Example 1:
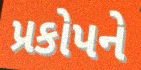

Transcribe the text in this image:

પ્રકોપને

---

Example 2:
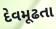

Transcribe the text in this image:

દેવમૂઢતા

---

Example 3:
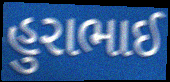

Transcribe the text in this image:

હુરાભાઈ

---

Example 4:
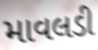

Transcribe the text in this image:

માવલડી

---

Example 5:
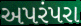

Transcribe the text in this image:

અપરંપરા